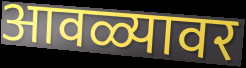
आवळ्यावर